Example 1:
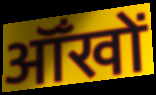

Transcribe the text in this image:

ऑँखों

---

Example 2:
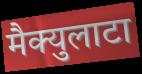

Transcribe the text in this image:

मैक्युलाटा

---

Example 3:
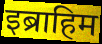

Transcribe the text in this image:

इब्राहिम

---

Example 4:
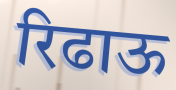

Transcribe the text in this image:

रिढाऊ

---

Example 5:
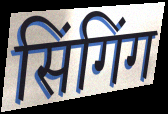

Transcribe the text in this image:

सिंगिंग